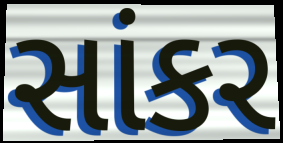
સાંકર